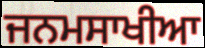
ਜਨਮਸਾਖੀਆ